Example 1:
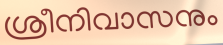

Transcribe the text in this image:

ശ്രീനിവാസനും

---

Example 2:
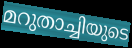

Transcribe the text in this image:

മറുതാച്ചിയുടെ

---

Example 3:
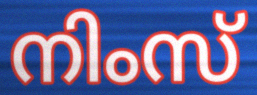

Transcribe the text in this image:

നിംസ്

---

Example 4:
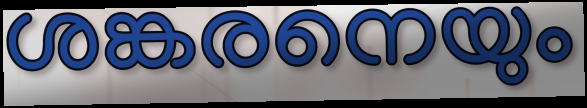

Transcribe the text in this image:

ശങ്കരനെയും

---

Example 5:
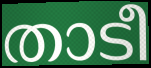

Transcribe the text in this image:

താടീ